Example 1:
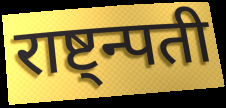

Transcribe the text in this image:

राष्ट्न्पती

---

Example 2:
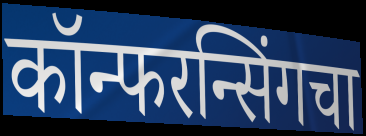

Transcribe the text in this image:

कॉन्फरन्सिंगचा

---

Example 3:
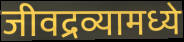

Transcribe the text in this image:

जीवद्रव्यामध्ये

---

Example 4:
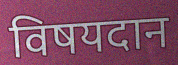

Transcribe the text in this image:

विषयदान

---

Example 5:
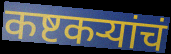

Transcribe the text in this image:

कष्टकऱ्यांचं